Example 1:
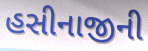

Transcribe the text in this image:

હસીનાજીની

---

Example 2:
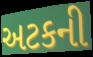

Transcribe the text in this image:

અટકની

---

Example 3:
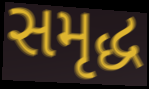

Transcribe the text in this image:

સમૃદ્ધ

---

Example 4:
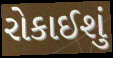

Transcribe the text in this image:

રોકાઈશું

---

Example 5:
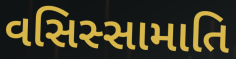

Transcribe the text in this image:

વસિસ્સામાતિ